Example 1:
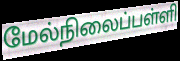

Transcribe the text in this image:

மேல்நிலைப்பள்ளி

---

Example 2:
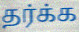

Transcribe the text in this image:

தர்க்க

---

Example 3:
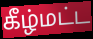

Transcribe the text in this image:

கீழ்மட்ட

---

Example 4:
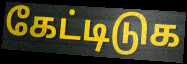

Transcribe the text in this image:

கேட்டிடுக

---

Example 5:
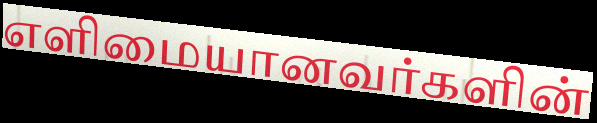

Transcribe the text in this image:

எளிமையானவர்களின்